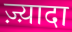
ज़्य़ादा